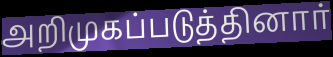
அறிமுகப்படுத்தினார்